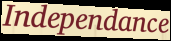
Independance